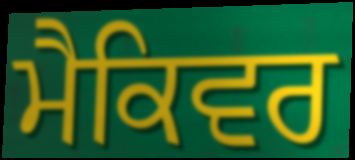
ਮੈਕਿਵਰ